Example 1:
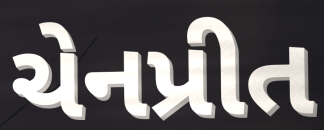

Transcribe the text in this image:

ચેનપ્રીત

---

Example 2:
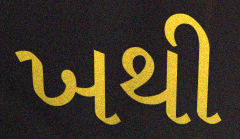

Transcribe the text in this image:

ખથી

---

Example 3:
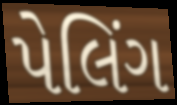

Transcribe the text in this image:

પેલિંગ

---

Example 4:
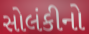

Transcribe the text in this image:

સોલંકીનો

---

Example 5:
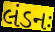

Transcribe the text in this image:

લંડનઃ